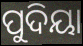
ପୁଦିୟା